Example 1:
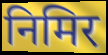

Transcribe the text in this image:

निमिर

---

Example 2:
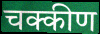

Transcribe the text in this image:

चक्कीण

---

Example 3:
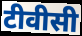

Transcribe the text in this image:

टीवीसी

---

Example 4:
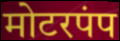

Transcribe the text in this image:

मोटरपंप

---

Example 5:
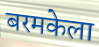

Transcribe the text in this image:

बरमकेला